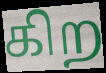
கிற